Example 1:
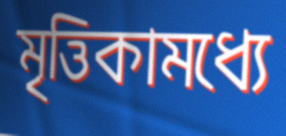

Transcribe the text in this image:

মৃত্তিকামধ্যে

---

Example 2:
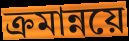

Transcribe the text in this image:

ক্রমান্নয়ে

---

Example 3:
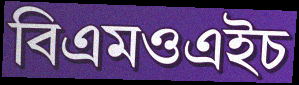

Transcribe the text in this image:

বিএমওএইচ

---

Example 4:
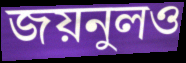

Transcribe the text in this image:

জয়নুলও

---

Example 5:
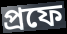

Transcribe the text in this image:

প্রফে